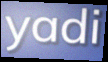
yadi